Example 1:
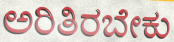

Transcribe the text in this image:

ಅರಿತಿರಬೇಕು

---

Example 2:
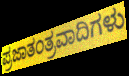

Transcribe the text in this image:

ಪ್ರಜಾತಂತ್ರವಾದಿಗಳು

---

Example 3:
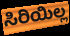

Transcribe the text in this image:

ಸಿರಿಯಿಲ್ಲ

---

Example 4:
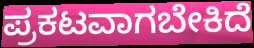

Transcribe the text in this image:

ಪ್ರಕಟವಾಗಬೇಕಿದೆ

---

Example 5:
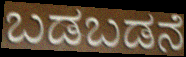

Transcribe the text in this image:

ಬಡಬಡನೆ